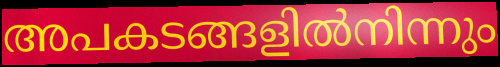
അപകടങ്ങളിൽനിന്നും